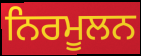
ਨਿਰਮੂਲਨ